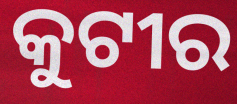
କୁଟୀର